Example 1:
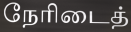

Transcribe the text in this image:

நேரிடைத்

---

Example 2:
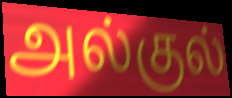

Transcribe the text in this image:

அல்குல்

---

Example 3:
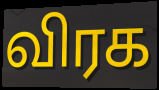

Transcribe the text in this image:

விரக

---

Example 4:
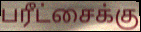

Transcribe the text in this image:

பரீட்சைக்கு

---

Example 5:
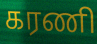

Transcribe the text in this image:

கரணி